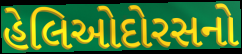
હેલિઓદોરસનો